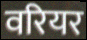
वरियर